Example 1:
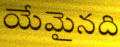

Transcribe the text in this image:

యేమైనది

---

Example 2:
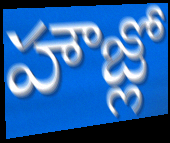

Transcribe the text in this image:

హౌజ్లో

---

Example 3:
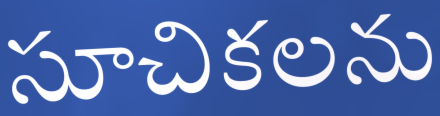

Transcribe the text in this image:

సూచికలను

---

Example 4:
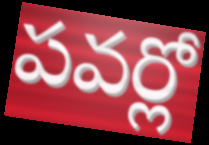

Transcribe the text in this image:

పవర్లో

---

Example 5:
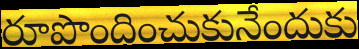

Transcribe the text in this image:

రూపొందించుకునేందుకు